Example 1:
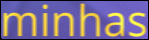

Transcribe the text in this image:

minhas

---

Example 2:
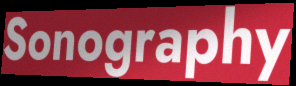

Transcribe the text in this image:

Sonography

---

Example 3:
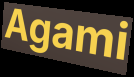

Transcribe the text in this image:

Agami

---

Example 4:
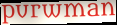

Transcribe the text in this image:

purwman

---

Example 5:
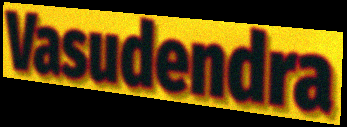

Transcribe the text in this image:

Vasudendra